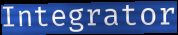
Integrator